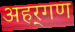
अहर्गण